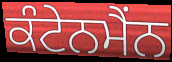
ਕੰਟੇਨਮੈਂਨ